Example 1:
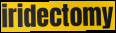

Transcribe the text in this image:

iridectomy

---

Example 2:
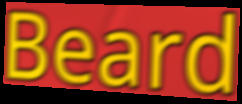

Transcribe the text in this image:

Beard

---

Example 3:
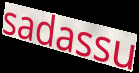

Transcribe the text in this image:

sadassu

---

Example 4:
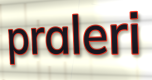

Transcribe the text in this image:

praleri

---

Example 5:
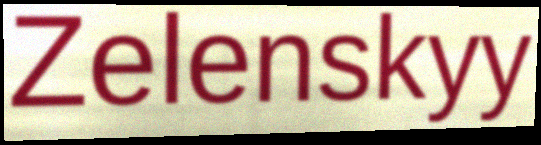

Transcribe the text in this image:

Zelenskyy